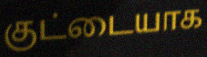
குட்டையாக